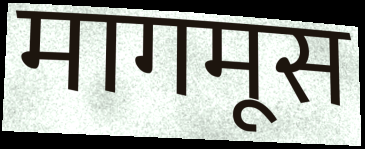
मागमूस